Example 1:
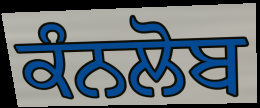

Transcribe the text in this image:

ਕੰਨਲੋਬ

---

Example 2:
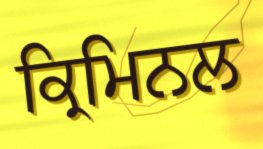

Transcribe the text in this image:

ਕ੍ਰਿਮਿਨਲ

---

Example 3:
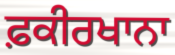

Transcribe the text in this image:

ਫ਼ਕੀਰਖਾਨਾ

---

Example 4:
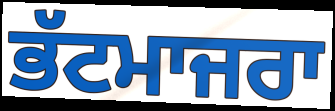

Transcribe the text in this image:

ਭੱਟਮਾਜਰਾ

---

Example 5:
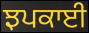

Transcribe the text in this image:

ਝਪਕਾਈ